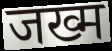
जख्म